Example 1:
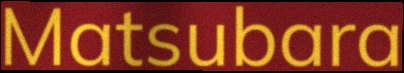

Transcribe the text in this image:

Matsubara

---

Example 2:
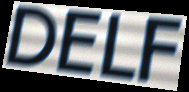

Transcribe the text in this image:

DELF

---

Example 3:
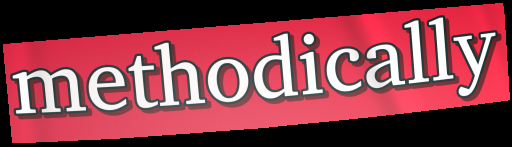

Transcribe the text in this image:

methodically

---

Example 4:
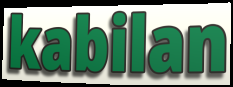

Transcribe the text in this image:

kabilan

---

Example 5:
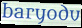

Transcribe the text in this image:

baryodu